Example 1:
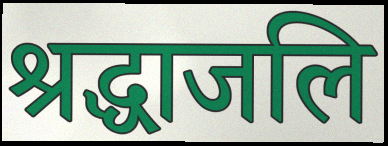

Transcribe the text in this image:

श्रद्धाजलि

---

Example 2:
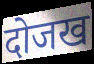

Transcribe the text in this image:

दोजख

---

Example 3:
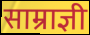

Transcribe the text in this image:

साम्राज्ञी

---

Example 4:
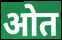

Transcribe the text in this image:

ओत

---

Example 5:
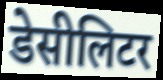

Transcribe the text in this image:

डेसीलिटर